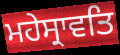
ਮਹੇਸ੍ਰਾਵਤਿ